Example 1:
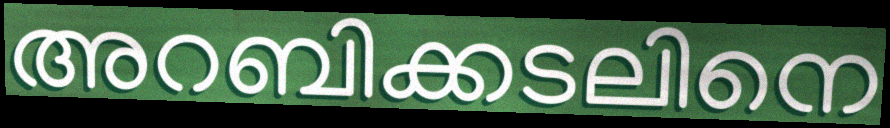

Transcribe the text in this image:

അറബിക്കടലിനെ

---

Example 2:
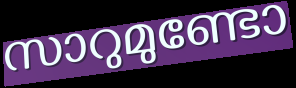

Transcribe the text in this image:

സാറുമുണ്ടോ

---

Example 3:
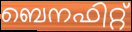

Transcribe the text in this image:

ബെനഫിറ്റ്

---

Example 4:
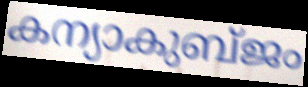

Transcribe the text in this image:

കന്യാകുബ്ജം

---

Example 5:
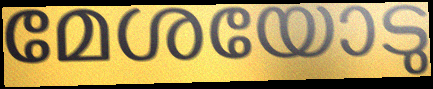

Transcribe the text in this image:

മേശയോടു